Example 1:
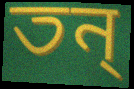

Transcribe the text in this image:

তন্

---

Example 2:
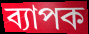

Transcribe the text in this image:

ব্যাপক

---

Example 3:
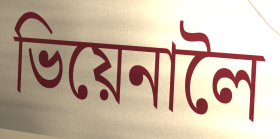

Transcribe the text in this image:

ভিয়েনালৈ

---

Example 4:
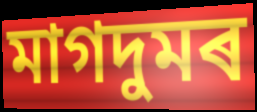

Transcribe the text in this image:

মাগদুমৰ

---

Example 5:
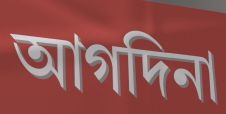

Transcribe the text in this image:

আগদিনা